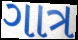
ગાત્ર